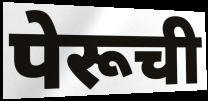
पेरूची